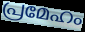
പ്രമേഹം